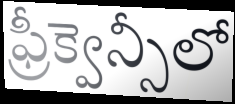
ఫ్రీక్వెన్సీలో